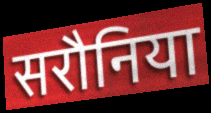
सरौनिया